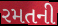
રમતની